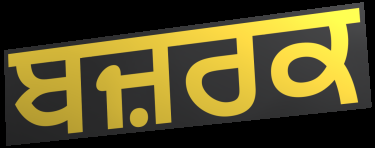
ਬਜ਼ਰਕ